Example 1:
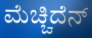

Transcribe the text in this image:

ಮೆಚ್ಚಿದೆನ್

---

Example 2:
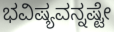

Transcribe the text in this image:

ಭವಿಷ್ಯವನ್ನಷ್ಟೇ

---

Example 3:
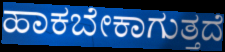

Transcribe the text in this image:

ಹಾಕಬೇಕಾಗುತ್ತದೆ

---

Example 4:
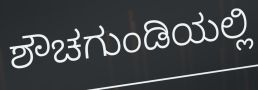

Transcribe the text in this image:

ಶೌಚಗುಂಡಿಯಲ್ಲಿ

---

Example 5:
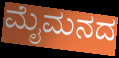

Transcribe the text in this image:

ಮೈಮನದ